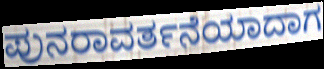
ಪುನರಾವರ್ತನೆಯಾದಾಗ